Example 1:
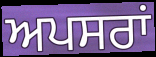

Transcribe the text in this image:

ਅਪਸਰਾਂ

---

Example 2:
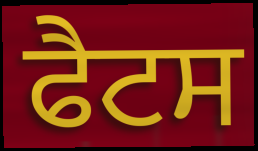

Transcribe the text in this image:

ਫੈਟਸ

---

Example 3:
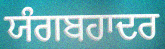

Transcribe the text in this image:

ਯੰਗਬਹਾਦਰ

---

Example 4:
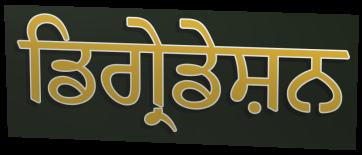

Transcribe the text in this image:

ਡਿਗ੍ਰੇਡੇਸ਼ਨ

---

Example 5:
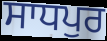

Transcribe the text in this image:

ਸਾਧਪੁਰ